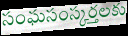
సంఘసంస్కర్తలకు